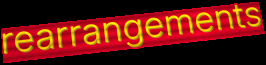
rearrangements